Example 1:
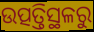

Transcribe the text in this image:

ଉତ୍ପତ୍ତିସ୍ଥଳରୁ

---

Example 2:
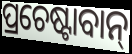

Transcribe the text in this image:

ପ୍ରଚେଷ୍ଟାବାନ୍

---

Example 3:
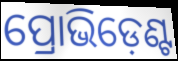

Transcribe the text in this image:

ପ୍ରୋଭିଡ଼େଣ୍ଟ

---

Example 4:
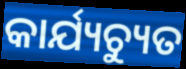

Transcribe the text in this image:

କାର୍ଯ୍ୟଚ୍ୟୁତ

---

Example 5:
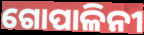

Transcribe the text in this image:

ଗୋପାଳିନୀ